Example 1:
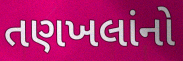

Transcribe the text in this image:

તણખલાંનો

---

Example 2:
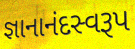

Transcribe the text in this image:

જ્ઞાનાનંદસ્વરૂપ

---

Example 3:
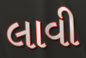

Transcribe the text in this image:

લાવી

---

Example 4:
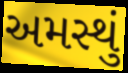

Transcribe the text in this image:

અમસ્થું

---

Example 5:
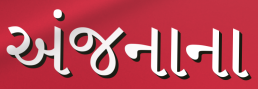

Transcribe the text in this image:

અંજનાના